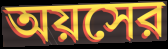
অয়সের